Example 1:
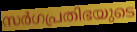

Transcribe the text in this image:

സർഗപ്രതിഭയുടെ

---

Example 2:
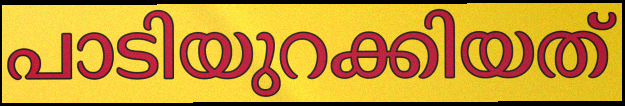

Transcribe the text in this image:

പാടിയുറക്കിയത്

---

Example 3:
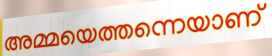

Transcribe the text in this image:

അമ്മയെത്തന്നെയാണ്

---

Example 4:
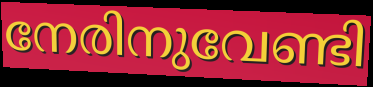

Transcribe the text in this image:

നേരിനുവേണ്ടി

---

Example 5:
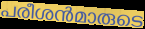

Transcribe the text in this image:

പരീശൻമാരുടെ